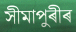
সীমাপুৰীৰ